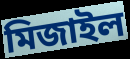
মিজাইল